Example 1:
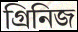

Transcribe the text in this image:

গ্রিনিজ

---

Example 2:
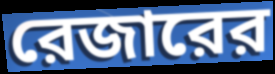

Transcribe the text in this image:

রেজারের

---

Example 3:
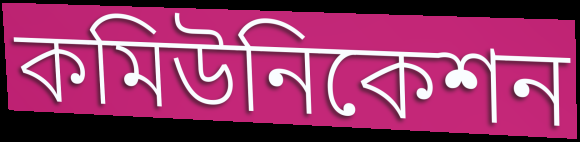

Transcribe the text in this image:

কমিউনিকেশন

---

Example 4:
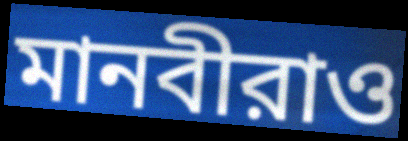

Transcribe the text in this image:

মানবীরাও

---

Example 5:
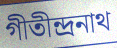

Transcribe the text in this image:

গীতীন্দ্রনাথ